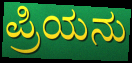
ಪ್ರಿಯನು